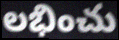
లభించు